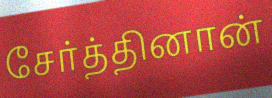
சேர்த்தினான்